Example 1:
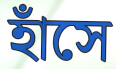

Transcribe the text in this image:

হাঁসে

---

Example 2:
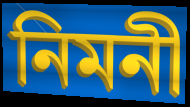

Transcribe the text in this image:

নিমনী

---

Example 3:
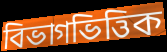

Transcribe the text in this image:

বিভাগভিত্তিক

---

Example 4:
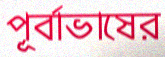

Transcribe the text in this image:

পূর্বাভাষের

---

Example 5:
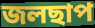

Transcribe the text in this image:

জলছাপ